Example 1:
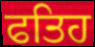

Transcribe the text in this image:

ਫਤਿਹ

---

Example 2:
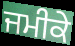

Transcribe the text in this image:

ਜਮੀਕੇ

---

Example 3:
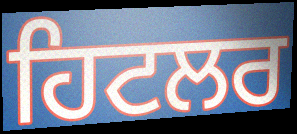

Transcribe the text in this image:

ਹਿਟਲਰ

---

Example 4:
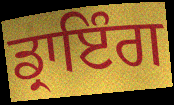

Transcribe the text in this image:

ਡ੍ਰਾਇੰਗ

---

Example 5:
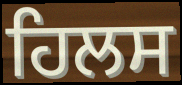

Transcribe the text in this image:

ਹਿਲਸ